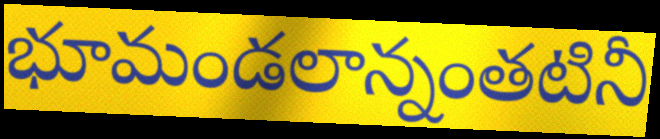
భూమండలాన్నంతటినీ